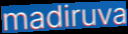
madiruva